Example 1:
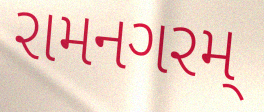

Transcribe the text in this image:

રામનગરમ્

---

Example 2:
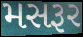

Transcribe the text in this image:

મસરૂર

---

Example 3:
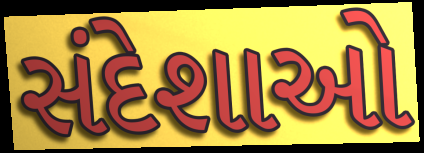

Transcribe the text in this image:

સંદેશાઓ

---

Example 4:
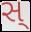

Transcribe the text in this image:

સ્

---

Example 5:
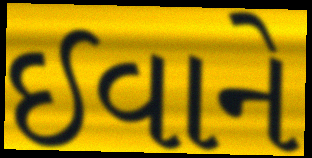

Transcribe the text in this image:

ઈવાને